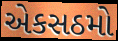
એકસઠમો